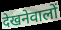
देखनेवालों